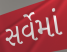
સર્વેમાં